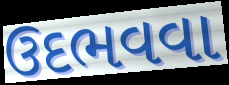
ઉદભવવા